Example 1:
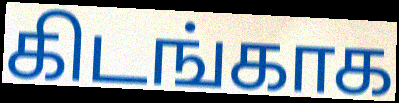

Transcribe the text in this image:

கிடங்காக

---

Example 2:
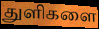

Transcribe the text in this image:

துளிகளை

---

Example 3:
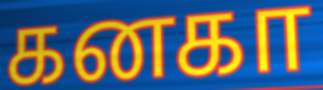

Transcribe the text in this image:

கனகா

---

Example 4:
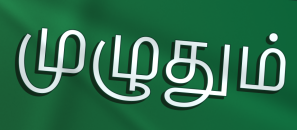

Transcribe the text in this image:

முழுதும்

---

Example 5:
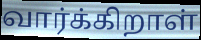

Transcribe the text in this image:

வார்க்கிறாள்